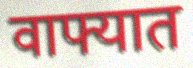
वाफ्यात